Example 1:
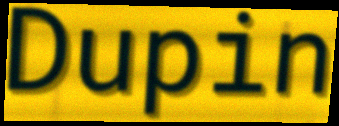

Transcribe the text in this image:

Dupin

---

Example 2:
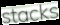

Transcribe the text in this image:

stacks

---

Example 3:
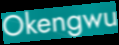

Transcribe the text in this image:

Okengwu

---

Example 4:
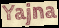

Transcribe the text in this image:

Yajna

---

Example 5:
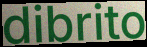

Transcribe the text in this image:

dibrito